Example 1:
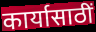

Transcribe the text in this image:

कार्यासाठीं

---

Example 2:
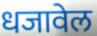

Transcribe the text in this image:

धजावेल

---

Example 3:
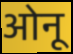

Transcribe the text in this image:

ओनू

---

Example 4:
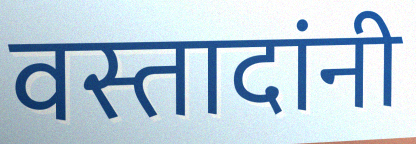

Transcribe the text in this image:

वस्तादांनी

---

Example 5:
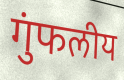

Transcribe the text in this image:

गुंफलीय